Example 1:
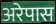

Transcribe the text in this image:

अरेपास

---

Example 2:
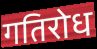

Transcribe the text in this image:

गतिरोध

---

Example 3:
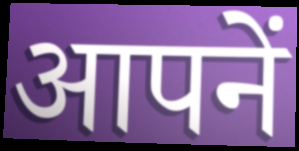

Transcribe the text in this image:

आपनें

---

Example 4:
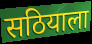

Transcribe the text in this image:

सठियाला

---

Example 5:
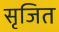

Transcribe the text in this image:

सृजित